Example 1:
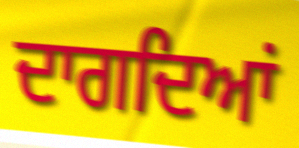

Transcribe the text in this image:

ਦਾਗਦਿਆਂ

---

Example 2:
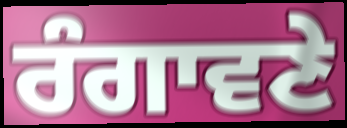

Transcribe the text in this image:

ਰੰਗਾਵਣੇ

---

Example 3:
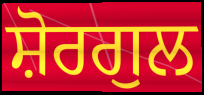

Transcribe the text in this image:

ਸ਼ੋਰਗੁਲ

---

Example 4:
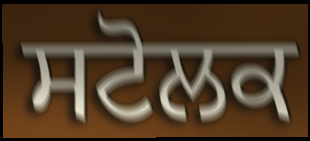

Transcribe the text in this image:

ਸਟੋਲਕ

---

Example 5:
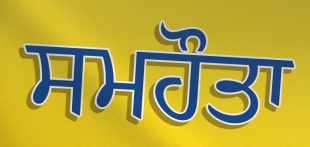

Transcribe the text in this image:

ਸਮਹੌਤਾ